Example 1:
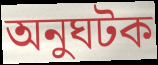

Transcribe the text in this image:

অনুঘটক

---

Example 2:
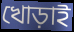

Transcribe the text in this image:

খোড়াই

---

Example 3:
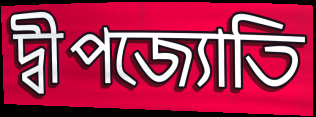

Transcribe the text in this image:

দ্বীপজ্যোতি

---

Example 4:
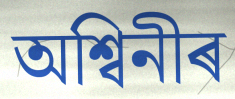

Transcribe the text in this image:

অশ্বিনীৰ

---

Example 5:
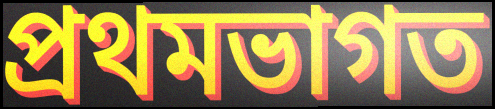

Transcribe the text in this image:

প্ৰথমভাগত